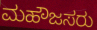
ಮಹೌಜಸರು